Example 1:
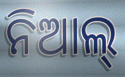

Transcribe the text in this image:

ନିଆଲ୍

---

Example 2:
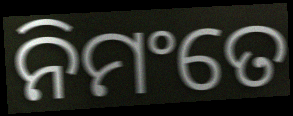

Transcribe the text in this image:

ନିମଂତେ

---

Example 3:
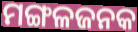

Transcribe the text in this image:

ମଙ୍ଗଳଜନକ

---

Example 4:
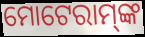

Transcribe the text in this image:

ମୋଟେରାମ୍‌ଙ୍କ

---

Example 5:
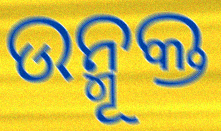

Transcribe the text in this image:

ଉନ୍ମୂକ୍ତ